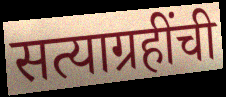
सत्याग्रहींची